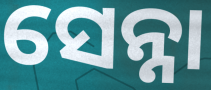
ସେନ୍ନା